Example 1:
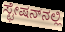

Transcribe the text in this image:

ಸ್ಟೇಷನ್‌ನಲ್ಲಿ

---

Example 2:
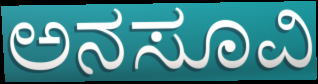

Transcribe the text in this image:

ಅನಸೂವಿ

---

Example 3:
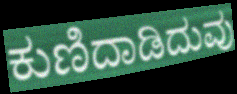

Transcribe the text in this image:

ಕುಣಿದಾಡಿದುವು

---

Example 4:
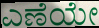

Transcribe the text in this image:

ಎಣೆಯೇ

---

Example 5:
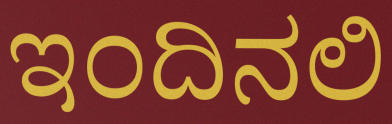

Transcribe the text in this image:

ಇಂದಿನಲಿ